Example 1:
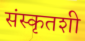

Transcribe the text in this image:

संस्कृतशी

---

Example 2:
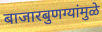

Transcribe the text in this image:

बाजारबुणग्यांमुळे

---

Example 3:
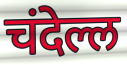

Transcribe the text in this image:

चंदेल्ल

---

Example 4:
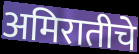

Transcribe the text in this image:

अमिरातीचे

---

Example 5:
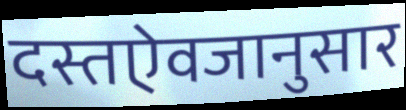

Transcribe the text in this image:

दस्तऐवजानुसार